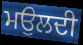
ਮਉਲਦੀ